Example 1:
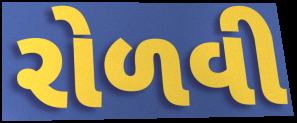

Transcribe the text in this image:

રોળવી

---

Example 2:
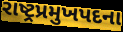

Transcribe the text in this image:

રાષ્ટ્રપ્રમુખપદના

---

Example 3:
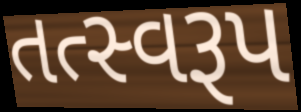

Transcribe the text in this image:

તત્સ્વરૂપ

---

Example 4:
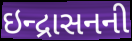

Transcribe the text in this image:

ઇન્દ્રાસનની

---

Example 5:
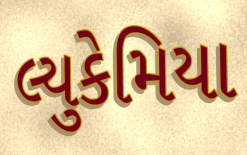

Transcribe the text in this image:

લ્યુકેમિયા